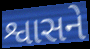
શ્વાસને